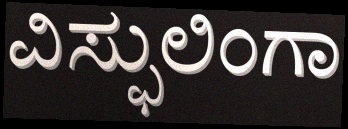
ವಿಸ್ಫುಲಿಂಗಾ